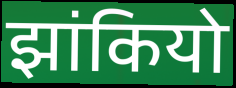
झांकियो